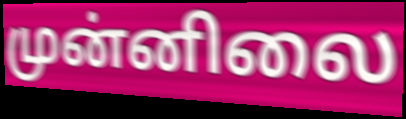
முன்னிலை